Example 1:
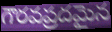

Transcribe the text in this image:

గౌరవప్రదమైన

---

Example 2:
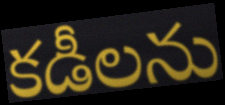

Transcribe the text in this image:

కడీలను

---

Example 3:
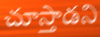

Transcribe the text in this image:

చూస్తాడని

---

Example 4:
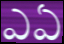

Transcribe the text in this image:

ఎఏ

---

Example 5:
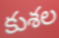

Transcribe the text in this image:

కుశల